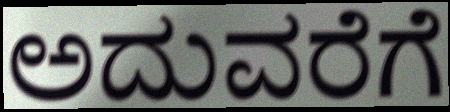
ಅದುವರೆಗೆ